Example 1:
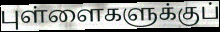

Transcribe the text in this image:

புள்ளைகளுக்குப்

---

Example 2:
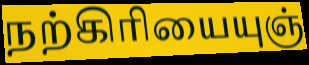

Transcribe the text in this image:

நற்கிரியையுஞ்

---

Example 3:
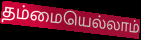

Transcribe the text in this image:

தம்மையெல்லாம்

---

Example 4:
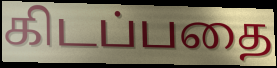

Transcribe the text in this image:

கிடப்பதை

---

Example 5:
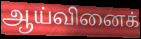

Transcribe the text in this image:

ஆய்வினைக்